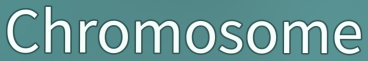
Chromosome